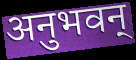
अनुभवन्